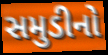
સમુડીનો